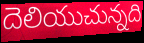
దెలియుచున్నది